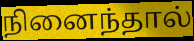
நினைந்தால்